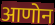
आणोन